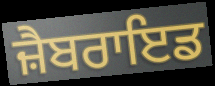
ਜ਼ੈਬਰਾਇਡ